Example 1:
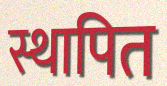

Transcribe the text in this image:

स्थापित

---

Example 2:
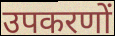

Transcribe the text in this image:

उपकरणों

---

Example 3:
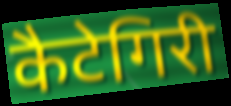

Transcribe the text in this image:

कैटेगिरी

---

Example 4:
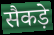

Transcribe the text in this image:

सैकड़े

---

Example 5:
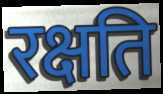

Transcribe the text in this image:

रक्षति